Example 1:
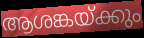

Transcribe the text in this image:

ആശങ്കയ്ക്കും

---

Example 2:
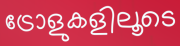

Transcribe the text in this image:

ട്രോളുകളിലൂടെ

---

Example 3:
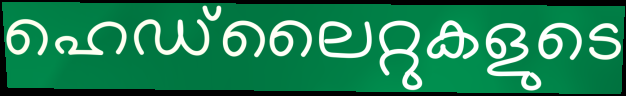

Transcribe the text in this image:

ഹെഡ്‌ലൈറ്റുകളുടെ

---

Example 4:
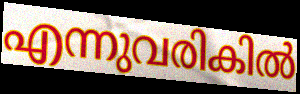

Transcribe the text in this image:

എന്നുവരികിൽ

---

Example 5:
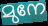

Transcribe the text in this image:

മുനേ